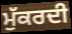
ਮੁੱਕਰਦੀ